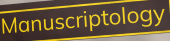
Manuscriptology